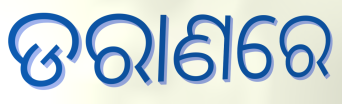
ଡରାଣରେ